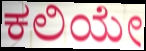
ಕಲಿಯೇ